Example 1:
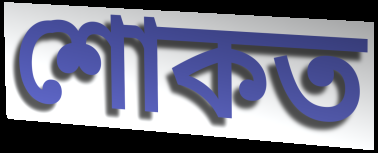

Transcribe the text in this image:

শোকত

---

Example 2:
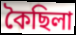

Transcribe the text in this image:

কৈছিলা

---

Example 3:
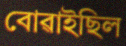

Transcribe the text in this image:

বোৱাইছিল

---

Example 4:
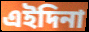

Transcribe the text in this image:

এইদিনা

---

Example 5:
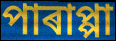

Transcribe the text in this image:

পাৰাপ্পা